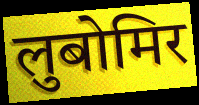
लुबोमिर